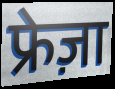
फ्रेज़ा